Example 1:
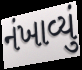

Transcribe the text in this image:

નંખાવ્યું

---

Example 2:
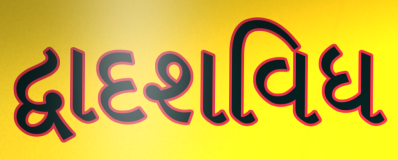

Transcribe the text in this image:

દ્વાદશવિધ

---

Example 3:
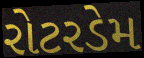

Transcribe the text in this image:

રોટરડેમ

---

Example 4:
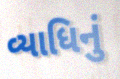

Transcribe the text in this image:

વ્યાધિનું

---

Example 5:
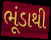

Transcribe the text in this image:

ભૂંડાથી